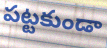
పట్టకుండా